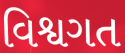
વિશ્વગત